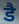
डै